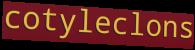
cotyleclons